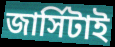
জার্সিটাই